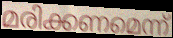
മരിക്കണമെന്ന്